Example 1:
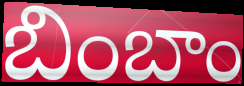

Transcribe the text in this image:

బింబాం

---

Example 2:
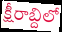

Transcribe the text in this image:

క్షీరాబ్దిలో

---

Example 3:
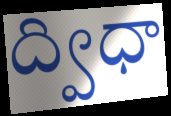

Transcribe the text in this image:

ద్విధా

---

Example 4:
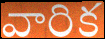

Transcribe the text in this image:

వారిక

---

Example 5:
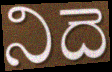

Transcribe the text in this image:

నిదె